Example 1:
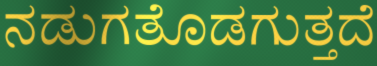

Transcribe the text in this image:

ನಡುಗತೊಡಗುತ್ತದೆ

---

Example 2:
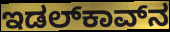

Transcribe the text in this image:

ಇಡಲ್‌ಕಾವ್‌ನ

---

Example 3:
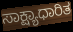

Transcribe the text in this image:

ಸಾಕ್ಷ್ಯಾಧಾರಿತ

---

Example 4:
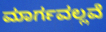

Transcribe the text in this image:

ಮಾರ್ಗವಲ್ಲವೆ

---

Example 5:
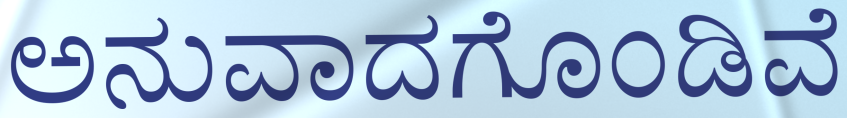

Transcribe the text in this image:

ಅನುವಾದಗೊಂಡಿವೆ